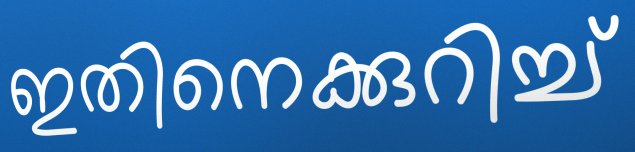
ഇതിനെക്കുറിച്ച്